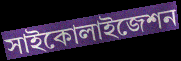
সাইকোলাইজেশন